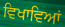
ਵਿਖਾਵਿਆਂ